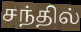
சந்தில்